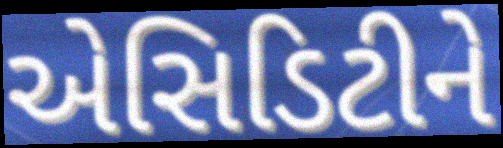
એસિડિટીને